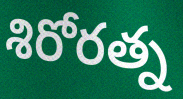
శిరోరత్న